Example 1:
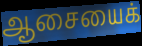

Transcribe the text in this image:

ஆசையைக்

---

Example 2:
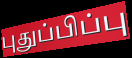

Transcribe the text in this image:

புதுப்பிப்பு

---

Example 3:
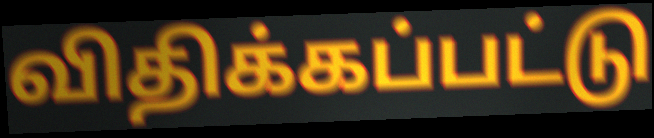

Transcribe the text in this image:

விதிக்கப்பட்டு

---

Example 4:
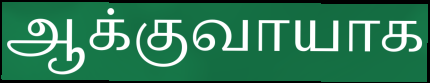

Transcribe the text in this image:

ஆக்குவாயாக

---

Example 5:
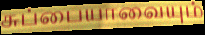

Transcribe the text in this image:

சுப்பையாவையும்